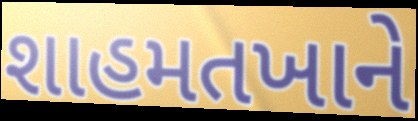
શાહમતખાને